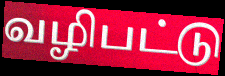
வழிபட்டு